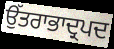
ਉੱਤਰਾਭਾਦ੍ਰਪਦ